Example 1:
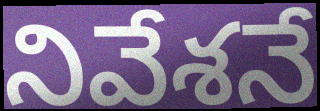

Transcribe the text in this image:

నివేశనే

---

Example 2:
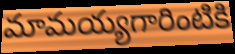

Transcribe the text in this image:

మామయ్యగారింటికి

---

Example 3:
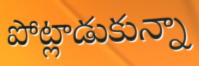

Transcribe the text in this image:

పోట్లాడుకున్నా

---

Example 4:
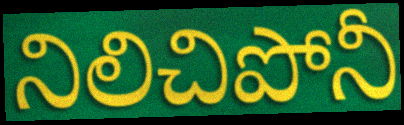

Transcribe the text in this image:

నిలిచిపోనీ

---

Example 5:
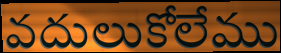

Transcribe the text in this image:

వదులుకోలేము